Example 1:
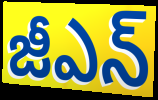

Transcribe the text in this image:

జీఎన్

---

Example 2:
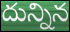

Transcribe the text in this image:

దున్నిన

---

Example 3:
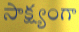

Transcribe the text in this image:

సాక్ష్యంగా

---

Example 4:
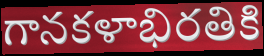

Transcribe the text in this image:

గానకళాభిరతికి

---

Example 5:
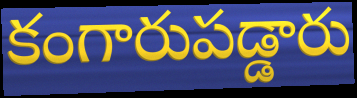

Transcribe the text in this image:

కంగారుపడ్డారు